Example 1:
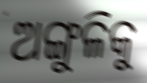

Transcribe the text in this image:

ଅଙ୍ଗୁଳିକୁ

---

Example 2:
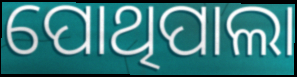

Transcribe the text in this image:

ପୋଥିପାଲା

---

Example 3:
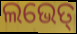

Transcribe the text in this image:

ଲଭେତ୍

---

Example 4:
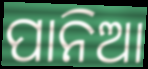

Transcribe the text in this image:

ପାନିଆ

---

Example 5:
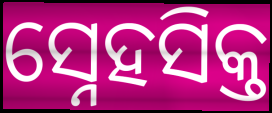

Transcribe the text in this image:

ସ୍ନେହସିକ୍ତ